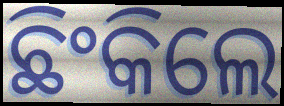
ଛିଂକିଲେ